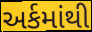
અર્કમાંથી